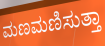
ಮಣಮಣಿಸುತ್ತಾ